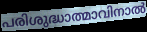
പരിശുദ്ധാത്മാവിനാൽ